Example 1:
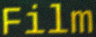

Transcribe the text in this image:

Film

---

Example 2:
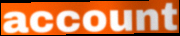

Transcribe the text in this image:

account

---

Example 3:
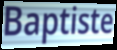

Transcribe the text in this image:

Baptiste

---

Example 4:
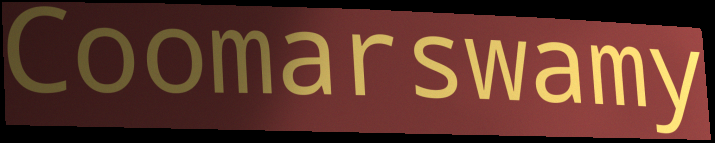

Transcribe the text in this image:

Coomarswamy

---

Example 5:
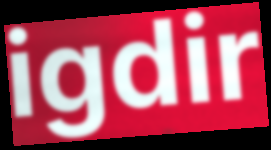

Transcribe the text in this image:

igdir